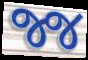
જ્જ